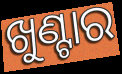
ଖୁଣ୍ଟାର